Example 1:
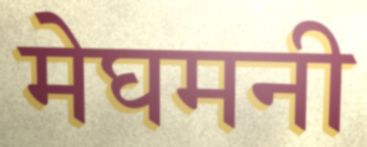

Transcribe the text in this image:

मेघमनी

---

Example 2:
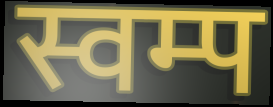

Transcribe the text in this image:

स्वम्प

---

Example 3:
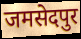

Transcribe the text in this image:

जमसेदपुर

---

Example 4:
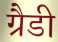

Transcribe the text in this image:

ग्रैडी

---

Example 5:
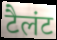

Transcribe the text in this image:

टैलंट